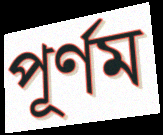
পূর্ণম